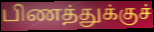
பிணத்துக்குச்